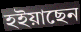
হইয়াছেন